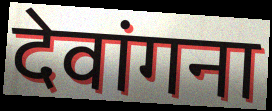
देवांगना